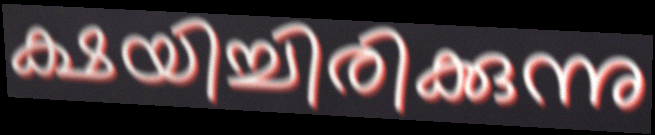
ക്ഷയിച്ചിരിക്കുന്നു